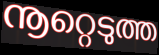
നൂറ്റെടുത്ത